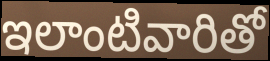
ఇలాంటివారితో